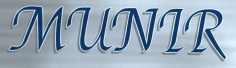
MUNIR